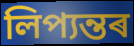
লিপ্যন্তৰ